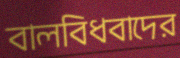
বালবিধবাদের